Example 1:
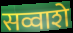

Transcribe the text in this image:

सव्वाशे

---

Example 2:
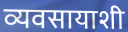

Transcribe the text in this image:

व्यवसायाशी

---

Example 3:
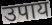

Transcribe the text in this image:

उपाय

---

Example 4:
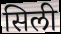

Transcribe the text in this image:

सिली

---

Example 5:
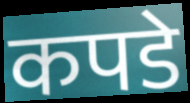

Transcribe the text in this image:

कपडे